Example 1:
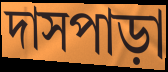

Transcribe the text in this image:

দাসপাড়া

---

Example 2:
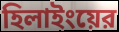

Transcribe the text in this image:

হিলাইংয়ের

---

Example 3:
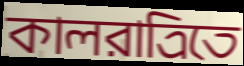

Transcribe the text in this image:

কালরাত্রিতে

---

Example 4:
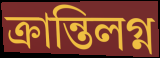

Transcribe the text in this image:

ক্রান্তিলগ্ন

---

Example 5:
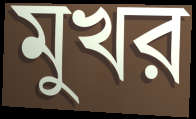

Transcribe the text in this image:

মুখর